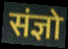
संज्ञो